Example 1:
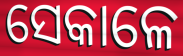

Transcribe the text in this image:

ସେକାଳେ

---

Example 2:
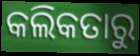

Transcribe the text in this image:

କଲିକତାରୁ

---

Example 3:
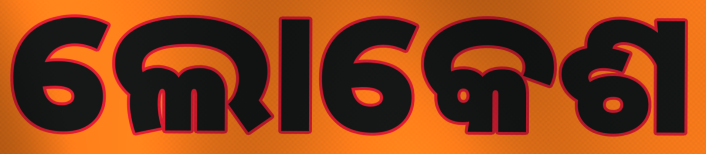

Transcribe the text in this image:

ଲୋକେଶ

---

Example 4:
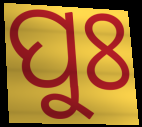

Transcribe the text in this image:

ପୁଃ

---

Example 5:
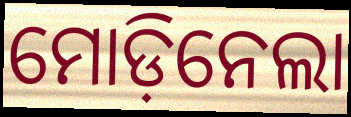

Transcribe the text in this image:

ମୋଡ଼ିନେଲା